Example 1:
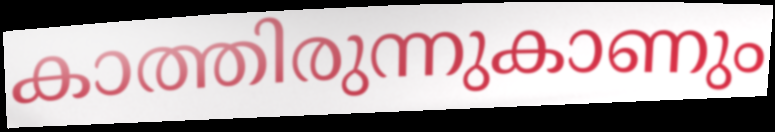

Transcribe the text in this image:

കാത്തിരുന്നുകാണും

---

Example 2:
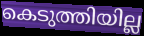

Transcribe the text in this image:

കെടുത്തിയില്ല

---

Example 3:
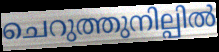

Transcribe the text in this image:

ചെറുത്തുനില്പിൽ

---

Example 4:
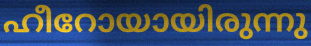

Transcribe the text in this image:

ഹീറോയായിരുന്നു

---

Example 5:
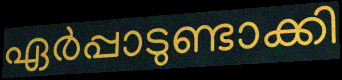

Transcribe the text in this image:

ഏർപ്പാടുണ്ടാക്കി